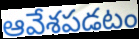
ఆవేశపడటం